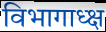
विभागाध्क्ष